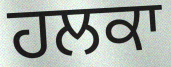
ਹਲਕਾ